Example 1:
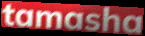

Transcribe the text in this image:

tamasha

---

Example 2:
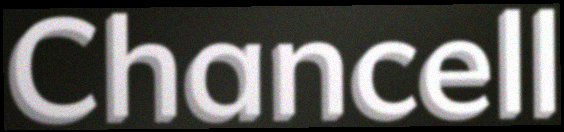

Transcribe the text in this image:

Chancell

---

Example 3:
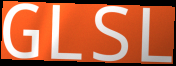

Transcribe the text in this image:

GLSL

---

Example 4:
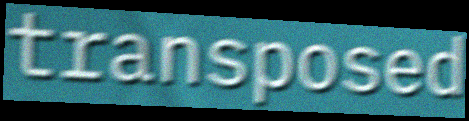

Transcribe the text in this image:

transposed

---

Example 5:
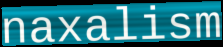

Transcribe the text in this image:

naxalism